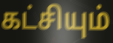
கட்சியும்